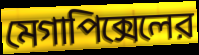
মেগাপিক্সেলের